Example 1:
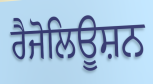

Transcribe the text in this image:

ਰੈਜੋਲਿਊਸ਼ਨ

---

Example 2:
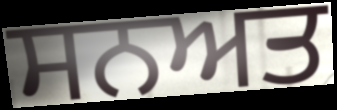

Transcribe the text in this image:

ਸਨਅਤ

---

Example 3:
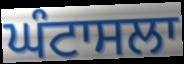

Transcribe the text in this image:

ਘੰਟਾਸਲਾ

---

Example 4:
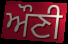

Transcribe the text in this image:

ਔਣੀ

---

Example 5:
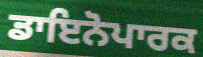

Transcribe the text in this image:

ਡਾਇਨੋਪਾਰਕ